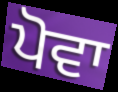
ਪੋਵਾ